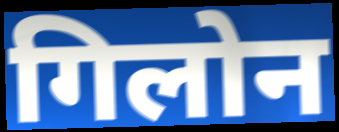
गिलोन